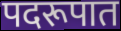
पदरूपात